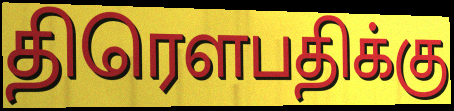
திரௌபதிக்கு